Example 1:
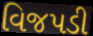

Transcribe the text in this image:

વિજપડી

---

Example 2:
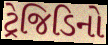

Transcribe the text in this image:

ટ્રેજિડિનો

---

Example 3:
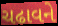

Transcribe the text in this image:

ચઢાવને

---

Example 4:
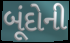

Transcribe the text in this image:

બૂંદોની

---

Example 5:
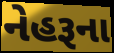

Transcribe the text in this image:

નેહરૂના